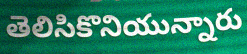
తెలిసికొనియున్నారు